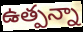
ఉత్పన్నా